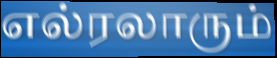
எல்ரலாரும்